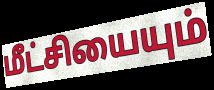
மீட்சியையும்